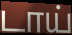
டாய்